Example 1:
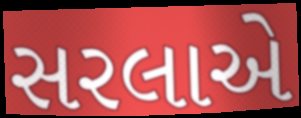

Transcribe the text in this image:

સરલાએ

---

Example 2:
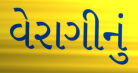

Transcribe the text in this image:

વેરાગીનું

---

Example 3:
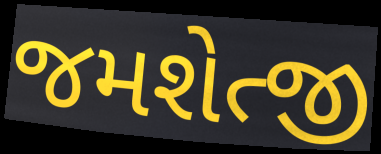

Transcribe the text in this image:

જમશેત્જી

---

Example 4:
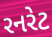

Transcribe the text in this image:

રનરેટ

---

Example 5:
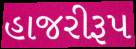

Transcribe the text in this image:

હાજરીરૂપ